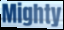
Mighty